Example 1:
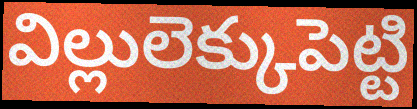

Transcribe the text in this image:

విల్లులెక్కుపెట్టి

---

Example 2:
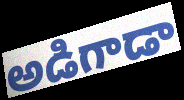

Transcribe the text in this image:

అడిగాడా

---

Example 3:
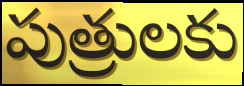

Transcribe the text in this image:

పుత్రులకు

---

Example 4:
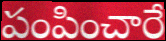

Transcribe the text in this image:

పంపించారే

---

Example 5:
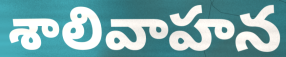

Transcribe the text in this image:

శాలివాహన